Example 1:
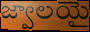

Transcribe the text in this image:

జ్వాలయై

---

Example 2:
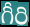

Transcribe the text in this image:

గీరి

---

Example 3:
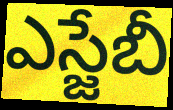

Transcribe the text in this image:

ఎస్జేబీ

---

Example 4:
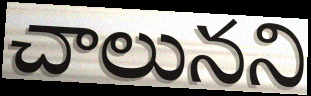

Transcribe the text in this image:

చాలునని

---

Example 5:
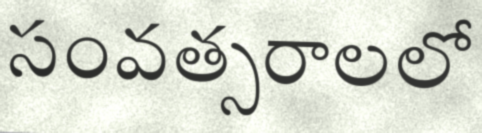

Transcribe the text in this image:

సంవత్సరాలలో